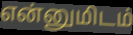
என்னுமிடம்